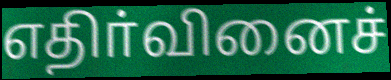
எதிர்வினைச்